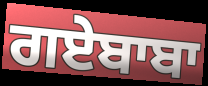
ਗਏਬਾਬਾ